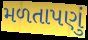
મળતાપણું